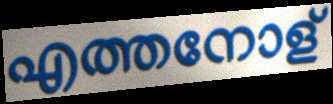
എത്തനോള്